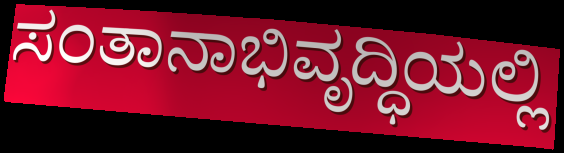
ಸಂತಾನಾಭಿವೃದ್ಧಿಯಲ್ಲಿ